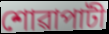
শোৱাপাটী